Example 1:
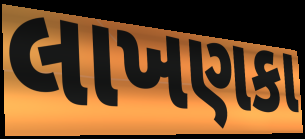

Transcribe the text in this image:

લાખણકા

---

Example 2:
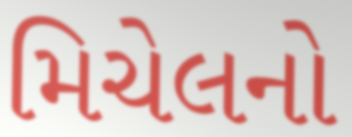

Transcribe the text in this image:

મિચેલનો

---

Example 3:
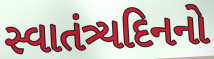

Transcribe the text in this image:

સ્વાતંત્ર્યદિનનો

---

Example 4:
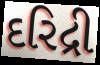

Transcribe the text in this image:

દરિદ્રી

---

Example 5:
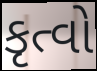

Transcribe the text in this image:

કૃત્વો